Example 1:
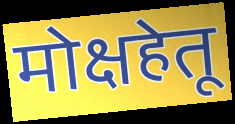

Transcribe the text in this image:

मोक्षहेतू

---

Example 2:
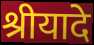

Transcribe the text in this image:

श्रीयादे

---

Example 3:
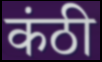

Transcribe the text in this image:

कंठी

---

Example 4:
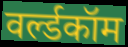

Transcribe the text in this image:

वर्ल्डकॉम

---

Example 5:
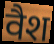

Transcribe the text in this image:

वैश